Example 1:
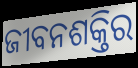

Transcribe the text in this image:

ଜୀବନଶକ୍ତିର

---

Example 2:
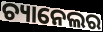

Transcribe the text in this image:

ଚ୍ୟାନେଲର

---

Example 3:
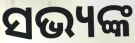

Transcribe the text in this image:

ସଭ୍ୟଙ୍କ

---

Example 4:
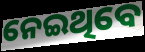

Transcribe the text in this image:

ନେଇଥିବେ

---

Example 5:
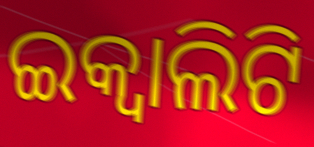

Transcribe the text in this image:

ଇକ୍ୱାଲିଟି